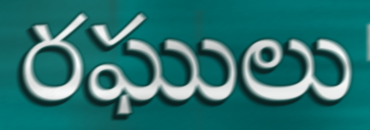
రఘులు